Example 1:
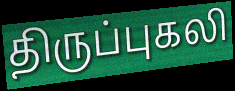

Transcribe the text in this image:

திருப்புகலி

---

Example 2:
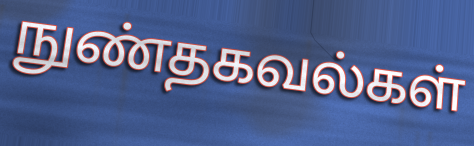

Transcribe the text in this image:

நுண்தகவல்கள்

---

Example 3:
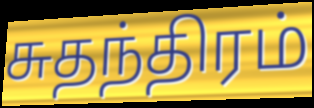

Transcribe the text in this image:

சுதந்திரம்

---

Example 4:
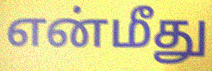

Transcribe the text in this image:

என்மீது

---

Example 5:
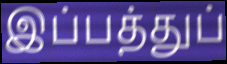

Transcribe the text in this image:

இப்பத்துப்